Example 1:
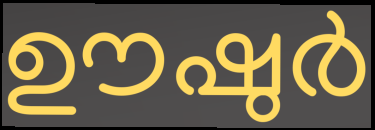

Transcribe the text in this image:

ഊഷുർ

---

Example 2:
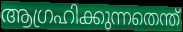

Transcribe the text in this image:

ആഗ്രഹിക്കുന്നതെന്ത്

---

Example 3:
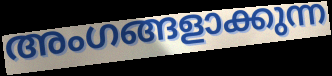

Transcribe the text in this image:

അംഗങ്ങളാക്കുന്ന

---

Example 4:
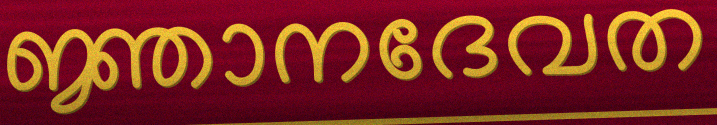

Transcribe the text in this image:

ജ്ഞാനദേവത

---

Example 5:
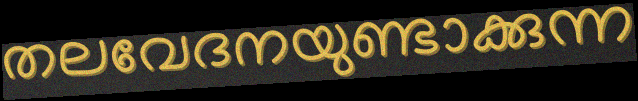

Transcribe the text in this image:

തലവേദനയുണ്ടാക്കുന്ന